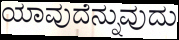
ಯಾವುದೆನ್ನುವುದು